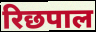
रिछपाल